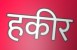
हकीर